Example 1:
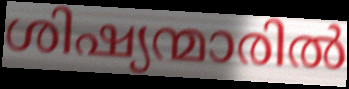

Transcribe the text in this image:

ശിഷ്യന്മാരിൽ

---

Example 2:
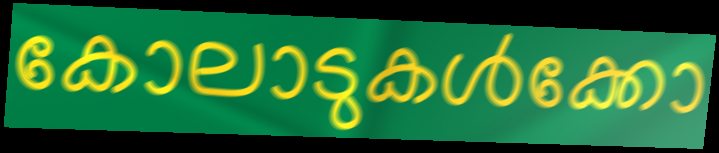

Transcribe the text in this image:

കോലാടുകൾക്കോ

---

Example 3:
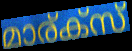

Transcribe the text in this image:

മാര്ക്സ്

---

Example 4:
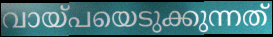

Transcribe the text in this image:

വായ്പയെടുക്കുന്നത്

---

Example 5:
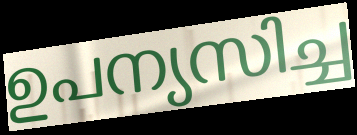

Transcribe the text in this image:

ഉപന്യസിച്ച